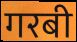
गरबी